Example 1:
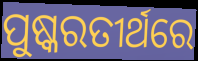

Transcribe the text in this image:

ପୁଷ୍କରତୀର୍ଥରେ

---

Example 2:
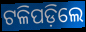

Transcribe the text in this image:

ଟଳିପଡ଼ିଲେ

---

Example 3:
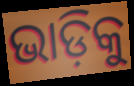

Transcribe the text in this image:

ଭାଡ଼ିକୁ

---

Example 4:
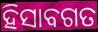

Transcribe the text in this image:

ହିସାବଗତ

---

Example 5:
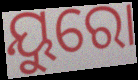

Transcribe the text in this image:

ୟୁରୋ